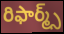
రిఫార్మ్స్